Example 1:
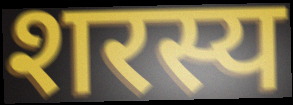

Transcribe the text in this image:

शरस्य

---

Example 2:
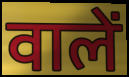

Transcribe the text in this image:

वालें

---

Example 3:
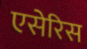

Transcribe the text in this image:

एसेरिस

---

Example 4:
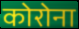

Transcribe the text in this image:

कोरोना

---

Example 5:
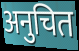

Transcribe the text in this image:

अनुचित